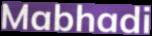
Mabhadi